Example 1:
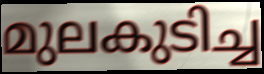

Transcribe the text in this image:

മുലകുടിച്ച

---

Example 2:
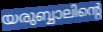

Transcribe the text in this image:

യരുബ്ബാലിന്റെ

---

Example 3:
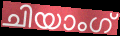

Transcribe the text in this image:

ചിയാംഗ്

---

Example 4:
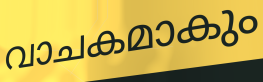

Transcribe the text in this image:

വാചകമാകും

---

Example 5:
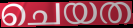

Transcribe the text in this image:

ചെയത